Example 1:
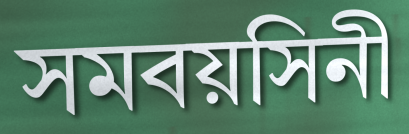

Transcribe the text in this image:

সমবয়সিনী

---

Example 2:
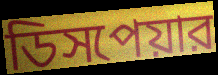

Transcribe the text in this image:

ডিসপেয়ার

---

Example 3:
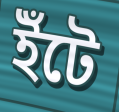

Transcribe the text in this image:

ইঁটে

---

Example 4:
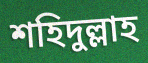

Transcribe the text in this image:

শহিদুল্লাহ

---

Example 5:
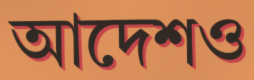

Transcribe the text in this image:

আদেশও